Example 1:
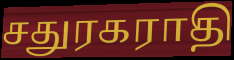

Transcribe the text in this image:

சதுரகராதி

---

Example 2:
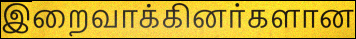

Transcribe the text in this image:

இறைவாக்கினர்களான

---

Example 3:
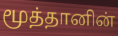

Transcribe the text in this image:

மூத்தானின்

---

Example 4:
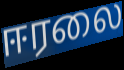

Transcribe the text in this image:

ஈரலை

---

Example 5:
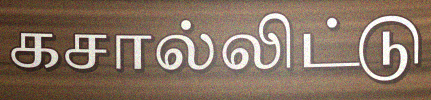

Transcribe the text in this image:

கசால்லிட்டு